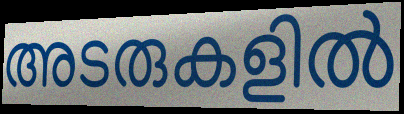
അടരുകളിൽ